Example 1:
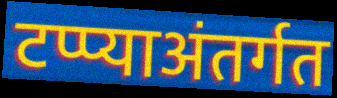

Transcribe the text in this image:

टप्प्याअंतर्गत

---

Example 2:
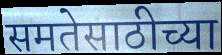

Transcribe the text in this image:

समतेसाठीच्या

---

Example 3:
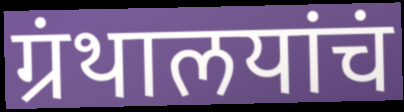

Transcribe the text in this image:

ग्रंथालयांचं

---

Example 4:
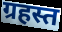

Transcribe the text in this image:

ग्रहस्त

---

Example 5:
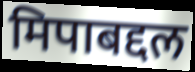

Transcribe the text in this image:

मिपाबद्दल